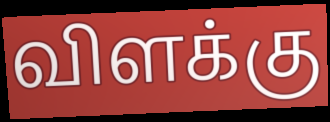
விளக்கு